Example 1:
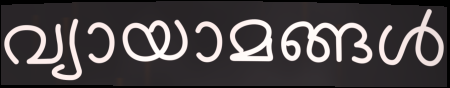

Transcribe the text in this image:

വ്യായാമങ്ങൾ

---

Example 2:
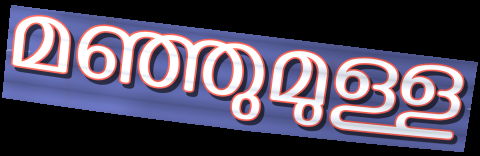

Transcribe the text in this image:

മഞ്ഞുമുള്ള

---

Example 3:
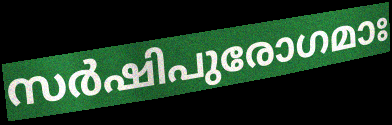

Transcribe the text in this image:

സർഷിപുരോഗമാഃ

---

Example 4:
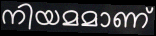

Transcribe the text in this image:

നിയമമാണ്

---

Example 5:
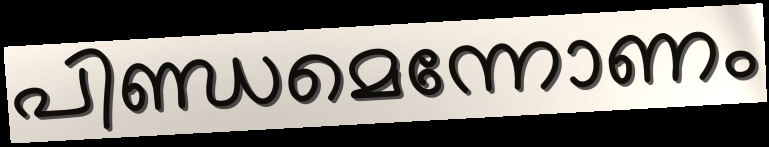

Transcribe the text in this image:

പിണ്ഡമെന്നോണം